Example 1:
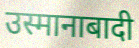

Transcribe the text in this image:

उस्मानाबादी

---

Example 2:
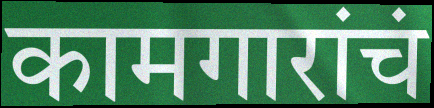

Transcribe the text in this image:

कामगारांचं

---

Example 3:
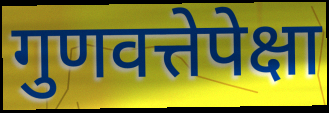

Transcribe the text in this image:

गुणवत्तेपेक्षा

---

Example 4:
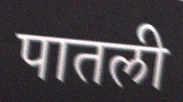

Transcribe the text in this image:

पातली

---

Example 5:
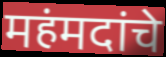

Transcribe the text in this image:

महंमदांचे